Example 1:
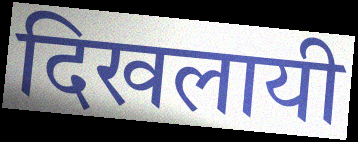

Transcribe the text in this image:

दिखलायी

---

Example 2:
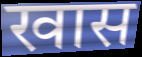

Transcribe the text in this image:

खास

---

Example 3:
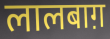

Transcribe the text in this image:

लालबाग़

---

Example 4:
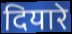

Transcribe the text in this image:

दियारे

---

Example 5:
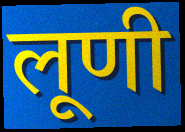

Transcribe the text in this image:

लूणी